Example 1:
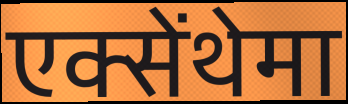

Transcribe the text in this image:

एक्सेंथेमा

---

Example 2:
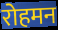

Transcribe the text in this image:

रोहमन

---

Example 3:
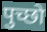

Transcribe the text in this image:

पुच्छो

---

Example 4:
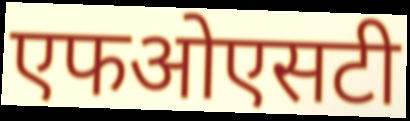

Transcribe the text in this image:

एफओएसटी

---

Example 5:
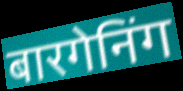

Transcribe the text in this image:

बारगेनिंग